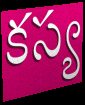
కస్య